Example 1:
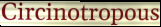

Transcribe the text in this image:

Circinotropous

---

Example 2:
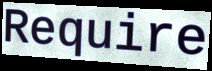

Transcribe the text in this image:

Require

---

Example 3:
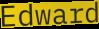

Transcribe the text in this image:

Edward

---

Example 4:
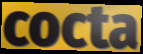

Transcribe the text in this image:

cocta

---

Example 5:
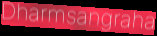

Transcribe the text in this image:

Dharmsangraha